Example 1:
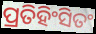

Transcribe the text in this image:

ପ୍ରତିହିଂସିତଂ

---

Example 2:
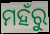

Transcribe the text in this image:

ମହଁରୁ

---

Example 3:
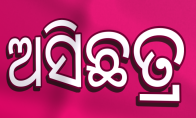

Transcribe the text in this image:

ଅସିଛତ୍ର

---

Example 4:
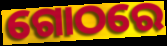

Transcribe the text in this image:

ଗୋଠରେ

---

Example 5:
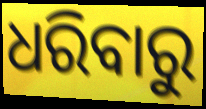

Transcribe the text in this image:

ଧରିବାରୁ